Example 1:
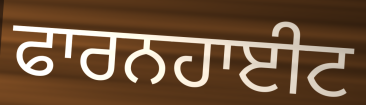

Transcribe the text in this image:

ਫਾਰਨਹਾਈਟ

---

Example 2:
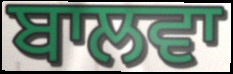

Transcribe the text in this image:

ਬਾਲਵਾ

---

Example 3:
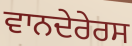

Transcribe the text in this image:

ਵਾਨਦੇਰੇਰਸ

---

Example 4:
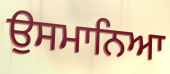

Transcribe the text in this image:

ਉਸਮਾਨਿਆ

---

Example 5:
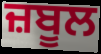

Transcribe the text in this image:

ਜ਼ਬੂਲ